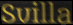
Suilla